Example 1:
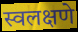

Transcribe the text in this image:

स्वलक्षणे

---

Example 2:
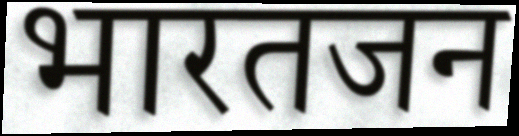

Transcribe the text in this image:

भारतजन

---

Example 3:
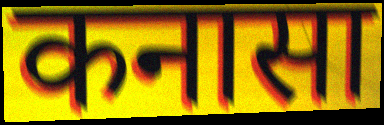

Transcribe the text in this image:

कनासा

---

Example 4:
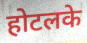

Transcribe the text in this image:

होटलके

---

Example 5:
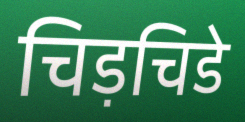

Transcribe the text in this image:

चिड़चिडे